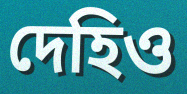
দেহিও